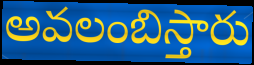
అవలంబిస్తారు